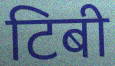
टिबी